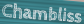
Chambliss